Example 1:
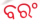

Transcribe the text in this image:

ବରଂ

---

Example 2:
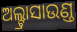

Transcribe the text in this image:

ଅଲ୍ଟ୍ରାସାଉଣ୍ଡ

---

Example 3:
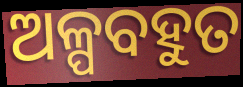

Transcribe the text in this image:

ଅଳ୍ପବହୁତ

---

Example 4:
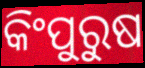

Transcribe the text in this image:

କିଂପୁରୁଷ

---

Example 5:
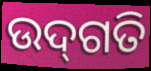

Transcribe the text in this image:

ଉଦ୍‌ଗତି